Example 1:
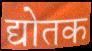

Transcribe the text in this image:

द्योतक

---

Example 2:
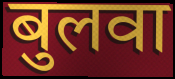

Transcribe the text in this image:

बुलवा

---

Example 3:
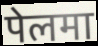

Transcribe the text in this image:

पेलमा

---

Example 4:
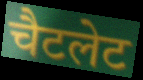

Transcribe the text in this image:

चैटलेट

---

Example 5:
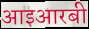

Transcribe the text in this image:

आइआरबी